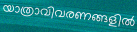
യാത്രാവിവരണങ്ങളിൽ